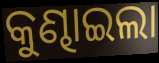
କୁଣ୍ଢାଇଲା